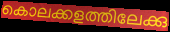
കൊലക്കളത്തിലേക്കു